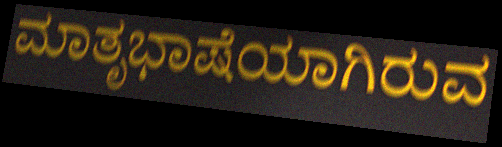
ಮಾತೃಭಾಷೆಯಾಗಿರುವ